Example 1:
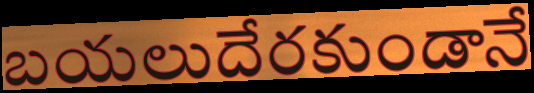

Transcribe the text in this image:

బయలుదేరకుండానే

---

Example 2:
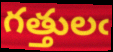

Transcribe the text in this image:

గత్తులఁ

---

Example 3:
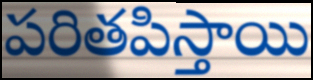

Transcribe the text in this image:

పరితపిస్తాయి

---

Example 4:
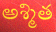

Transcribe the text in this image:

అశ్మిత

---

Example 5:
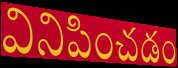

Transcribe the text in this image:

వినిపించడం